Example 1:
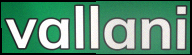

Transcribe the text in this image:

vallani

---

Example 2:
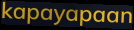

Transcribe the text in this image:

kapayapaan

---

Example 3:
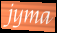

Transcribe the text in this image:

jyma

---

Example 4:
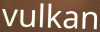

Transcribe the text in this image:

vulkan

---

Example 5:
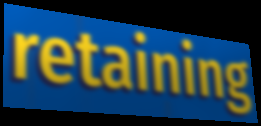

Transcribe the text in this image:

retaining